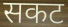
सकट